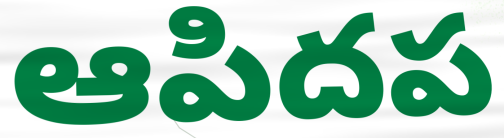
ఆపిదప